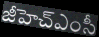
జీహెచ్ఎంసీ